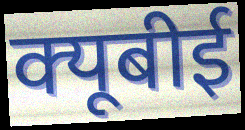
क्यूबीई